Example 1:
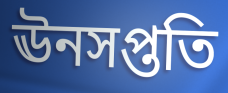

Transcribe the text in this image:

ঊনসপ্ততি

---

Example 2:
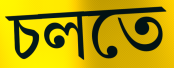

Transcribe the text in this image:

চলতে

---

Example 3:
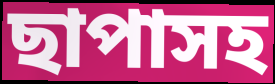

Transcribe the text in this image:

ছাপাসহ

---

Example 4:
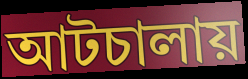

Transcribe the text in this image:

আটচালায়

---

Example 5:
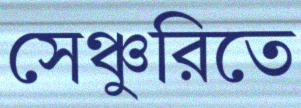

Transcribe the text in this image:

সেঞ্চুরিতে